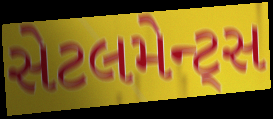
સેટલમેન્ટ્સ